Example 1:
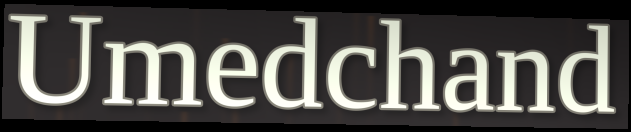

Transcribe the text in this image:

Umedchand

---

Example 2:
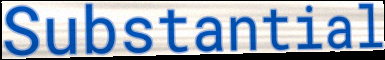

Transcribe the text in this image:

Substantial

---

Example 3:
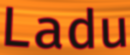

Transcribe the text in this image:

Ladu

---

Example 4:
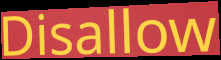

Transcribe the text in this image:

Disallow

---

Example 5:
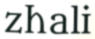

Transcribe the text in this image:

zhali